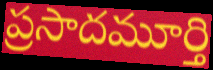
ప్రసాదమూర్తి